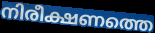
നിരീക്ഷണത്തെ